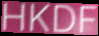
HKDF